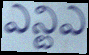
ఎన్టిఎ